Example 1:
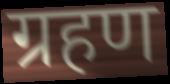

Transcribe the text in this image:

ग्रहण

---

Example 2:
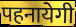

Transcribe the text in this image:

पहनायेगी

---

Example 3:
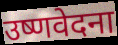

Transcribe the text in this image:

उष्णवेदना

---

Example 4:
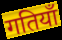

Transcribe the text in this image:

गतियाँ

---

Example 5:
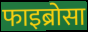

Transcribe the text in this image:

फाइब्रोसा